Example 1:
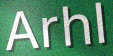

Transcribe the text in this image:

Arhl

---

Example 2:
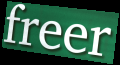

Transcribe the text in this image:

freer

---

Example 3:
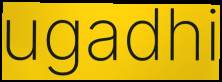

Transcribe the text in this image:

ugadhi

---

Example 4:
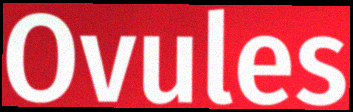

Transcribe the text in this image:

Ovules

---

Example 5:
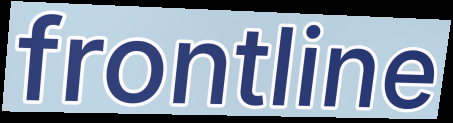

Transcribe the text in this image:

frontline